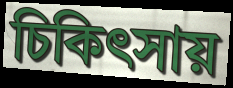
চিকিৎসায়